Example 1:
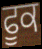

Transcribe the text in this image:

ਫੂਕ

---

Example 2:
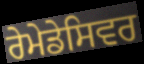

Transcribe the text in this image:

ਰੇਮੇਡੇਸਿਵਰ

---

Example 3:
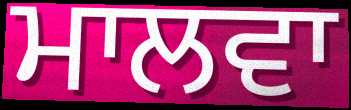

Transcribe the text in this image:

ਮਾਲਵਾ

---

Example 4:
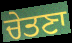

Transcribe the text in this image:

ਚੇਤਣਾ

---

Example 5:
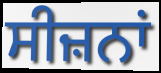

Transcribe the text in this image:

ਸੀਜ਼ਨਾਂ